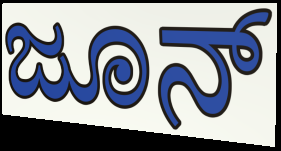
ಜೂನ್